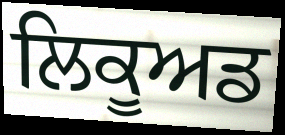
ਲਿਕੂਅਡ